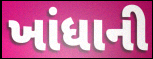
ખાંધાની